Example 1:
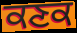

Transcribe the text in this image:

ਕਣਕ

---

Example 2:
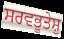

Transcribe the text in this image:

ਸਰਵਭੂਤੇਸ਼ੁ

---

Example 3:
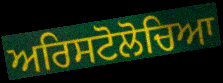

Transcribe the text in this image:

ਅਰਿਸਟੋਲੋਚਿਆ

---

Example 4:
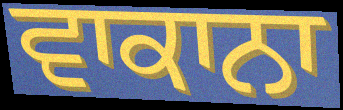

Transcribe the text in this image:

ਵਾਕਾਨਾ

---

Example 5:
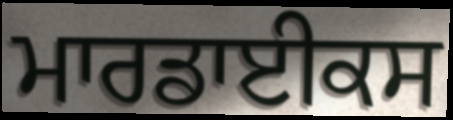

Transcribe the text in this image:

ਮਾਰਡਾਈਕਸ